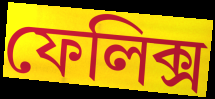
ফেলিক্স